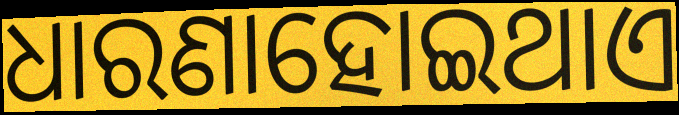
ଧାରଣାହୋଇଥାଏ